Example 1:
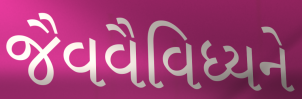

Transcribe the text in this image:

જૈવવૈવિધ્યને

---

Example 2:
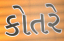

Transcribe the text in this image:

કોતરે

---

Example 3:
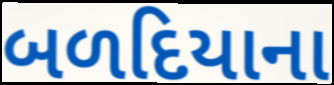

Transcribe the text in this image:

બળદિયાના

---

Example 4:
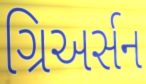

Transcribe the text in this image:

ગ્રિઅર્સન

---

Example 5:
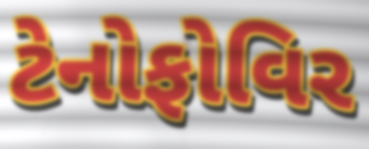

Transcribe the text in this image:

ટેનોફોવિર